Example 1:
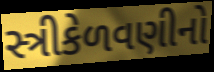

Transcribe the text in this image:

સ્ત્રીકેળવણીનો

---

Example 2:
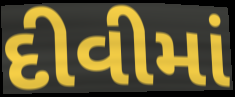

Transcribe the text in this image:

દીવીમાં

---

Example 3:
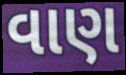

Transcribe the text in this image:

વાણ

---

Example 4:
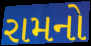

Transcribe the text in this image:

રામનો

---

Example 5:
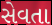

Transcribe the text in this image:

સેવતા